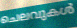
ചെലവുകൾ